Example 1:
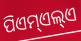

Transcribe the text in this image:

ପିଏମ୍ଏଲ୍ଏ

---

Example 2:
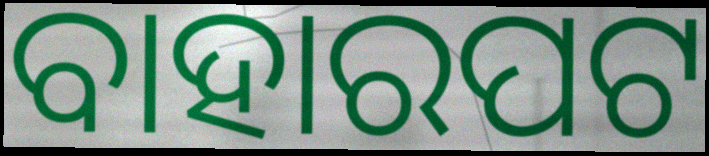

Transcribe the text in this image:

ବାହାରପଟ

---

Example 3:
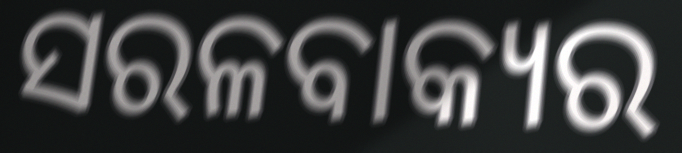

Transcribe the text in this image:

ସରଳବାକ୍ୟର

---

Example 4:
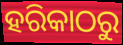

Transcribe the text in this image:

ହରିକାଠରୁ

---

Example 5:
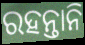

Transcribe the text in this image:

ରହନ୍ତାନି